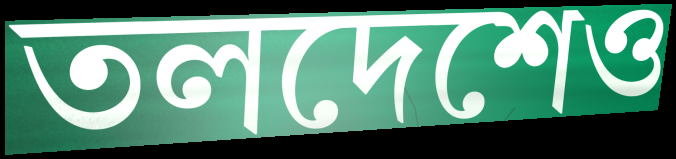
তলদেশেও